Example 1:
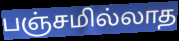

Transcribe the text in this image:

பஞ்சமில்லாத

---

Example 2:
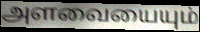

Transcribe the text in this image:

அளவையையும்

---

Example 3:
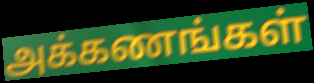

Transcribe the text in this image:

அக்கணங்கள்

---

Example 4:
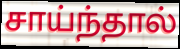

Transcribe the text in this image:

சாய்ந்தால்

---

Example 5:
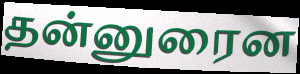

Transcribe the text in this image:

தன்னுரைன